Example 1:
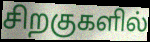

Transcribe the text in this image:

சிறகுகளில்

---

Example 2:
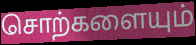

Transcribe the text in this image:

சொற்களையும்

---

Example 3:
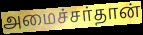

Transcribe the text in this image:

அமைச்சர்தான்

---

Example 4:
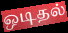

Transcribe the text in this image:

ஒடிதல்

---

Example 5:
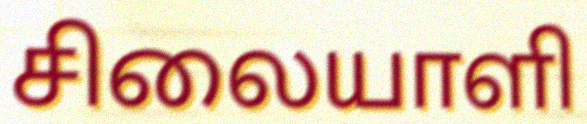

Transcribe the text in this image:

சிலையாளி